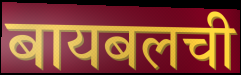
बायबलची